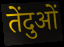
तेंदुओं